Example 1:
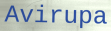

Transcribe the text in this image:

Avirupa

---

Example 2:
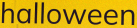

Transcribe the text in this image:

halloween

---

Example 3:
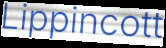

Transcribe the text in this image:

Lippincott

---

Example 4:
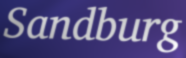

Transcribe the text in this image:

Sandburg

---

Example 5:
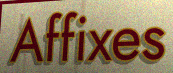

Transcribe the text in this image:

Affixes